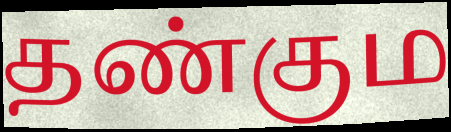
தண்கும